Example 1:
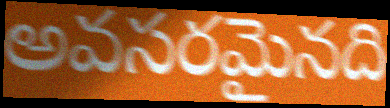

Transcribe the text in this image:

అవసరమైనది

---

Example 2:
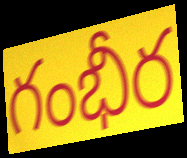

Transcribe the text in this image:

గంభీర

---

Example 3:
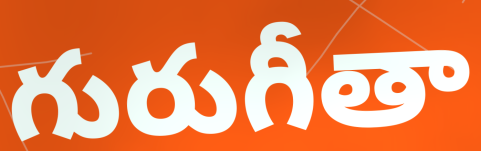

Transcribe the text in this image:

గురుగీతా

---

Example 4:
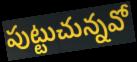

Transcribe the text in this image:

పుట్టుచున్నవో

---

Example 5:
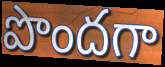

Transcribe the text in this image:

పొందగా